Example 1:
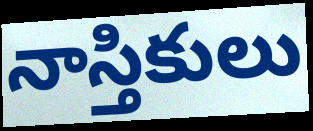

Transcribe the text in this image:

నాస్తికులు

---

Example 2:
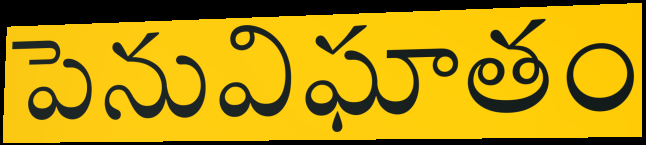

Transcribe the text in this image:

పెనువిఘాతం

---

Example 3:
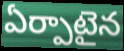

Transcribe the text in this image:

ఏర్పాటైన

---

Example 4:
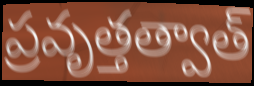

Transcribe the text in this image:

ప్రవృత్తత్వాత్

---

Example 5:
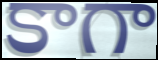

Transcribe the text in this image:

కాగా